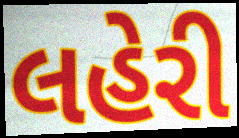
લહેરી